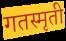
गतस्मृती